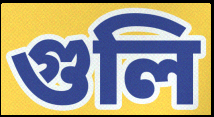
গুলি